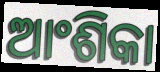
ଆଂଶିକା